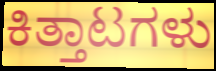
ಕಿತ್ತಾಟಗಳು